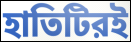
হাতিটিরই